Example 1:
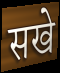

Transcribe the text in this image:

सखे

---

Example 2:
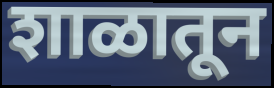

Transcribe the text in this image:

शाळातून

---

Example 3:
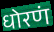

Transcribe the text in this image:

धोरणं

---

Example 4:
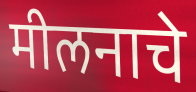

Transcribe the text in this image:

मीलनाचे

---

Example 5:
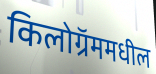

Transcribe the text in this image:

किलोग्रॅममधील